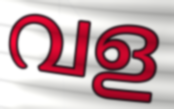
വള